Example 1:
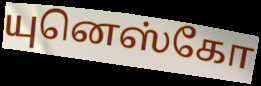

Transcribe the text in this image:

யுனெஸ்கோ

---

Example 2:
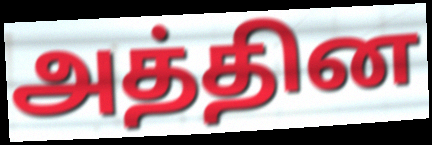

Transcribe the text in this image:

அத்தின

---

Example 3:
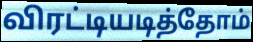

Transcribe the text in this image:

விரட்டியடித்தோம்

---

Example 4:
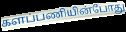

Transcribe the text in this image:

களப்பணியின்போது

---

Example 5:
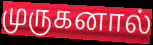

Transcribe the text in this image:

முருகனால்